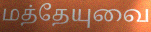
மத்தேயுவை